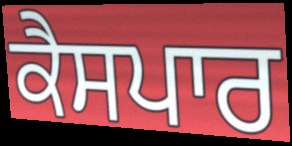
ਕੈਸਪਾਰ